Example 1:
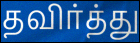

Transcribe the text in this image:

தவிர்த்து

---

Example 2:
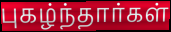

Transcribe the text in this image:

புகழ்ந்தார்கள்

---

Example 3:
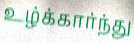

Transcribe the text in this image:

உழ்க்கார்ந்து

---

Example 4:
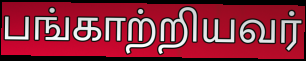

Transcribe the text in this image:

பங்காற்றியவர்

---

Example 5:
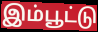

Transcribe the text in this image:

இம்பூட்டு